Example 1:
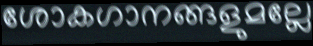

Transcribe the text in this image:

ശോകഗാനങ്ങളുമല്ലേ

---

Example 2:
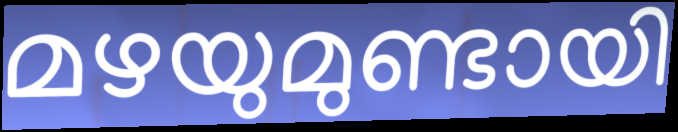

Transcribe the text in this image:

മഴയുമുണ്ടായി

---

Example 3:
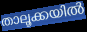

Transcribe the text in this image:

താലൂക്കയിൽ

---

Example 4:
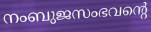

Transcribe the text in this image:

നംബുജസംഭവന്റെ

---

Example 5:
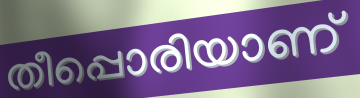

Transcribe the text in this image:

തീപ്പൊരിയാണ്